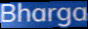
Bharga